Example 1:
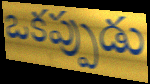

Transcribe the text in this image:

ఒకప్పుడు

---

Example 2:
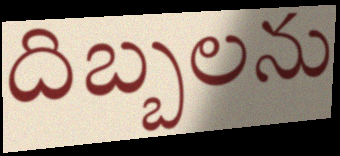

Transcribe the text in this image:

దిబ్బలను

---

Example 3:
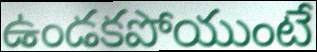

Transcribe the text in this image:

ఉండకపోయుంటే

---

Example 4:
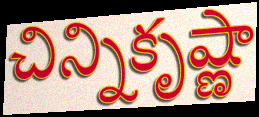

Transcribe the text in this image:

చిన్నికృష్ణా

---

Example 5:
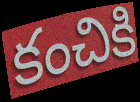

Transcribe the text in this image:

కంచికి